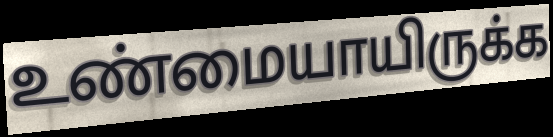
உண்மையாயிருக்க